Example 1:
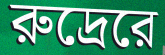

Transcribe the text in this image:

রুদ্রেরে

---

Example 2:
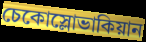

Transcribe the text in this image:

চেকোস্লোভাকিয়ান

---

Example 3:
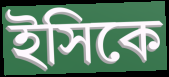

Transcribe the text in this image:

ইসিকে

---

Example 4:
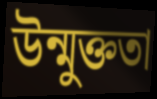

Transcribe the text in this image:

উন্মুক্ততা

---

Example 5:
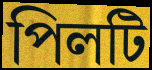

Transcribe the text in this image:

পিলটি